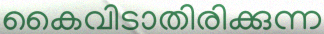
കൈവിടാതിരിക്കുന്ന